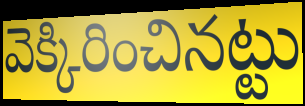
వెక్కిరించినట్టు